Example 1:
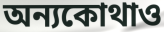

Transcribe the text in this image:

অন্যকোথাও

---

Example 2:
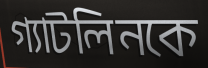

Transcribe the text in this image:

গ্যাটলিনকে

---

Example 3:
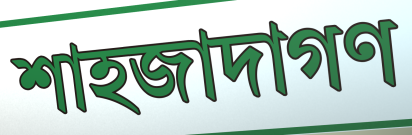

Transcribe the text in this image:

শাহজাদাগণ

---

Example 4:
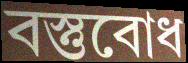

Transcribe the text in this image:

বস্তুবোধ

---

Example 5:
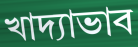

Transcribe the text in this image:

খাদ্যাভাব